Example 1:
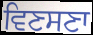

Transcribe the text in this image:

ਵਿਣਸਣਾ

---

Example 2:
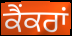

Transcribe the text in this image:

ਕੈਂਕਰਾਂ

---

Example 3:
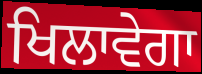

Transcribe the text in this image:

ਖਿਲਾਵੇਗਾ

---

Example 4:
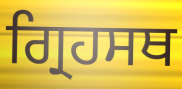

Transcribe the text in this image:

ਗ੍ਰਿਹਸਥ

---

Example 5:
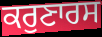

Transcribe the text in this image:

ਕਰੁਣਾਰਸ